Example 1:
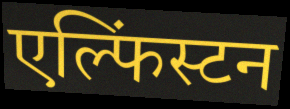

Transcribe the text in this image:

एल्फिंस्टन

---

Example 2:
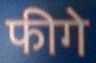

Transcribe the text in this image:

फीगे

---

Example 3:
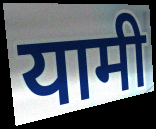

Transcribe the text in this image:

यामी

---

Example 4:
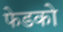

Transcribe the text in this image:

फेडको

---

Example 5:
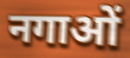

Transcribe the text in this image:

नगाओं